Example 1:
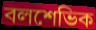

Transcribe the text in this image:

বলশেভিক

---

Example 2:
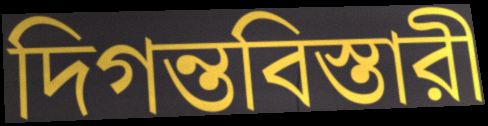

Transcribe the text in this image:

দিগন্তবিস্তারী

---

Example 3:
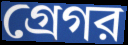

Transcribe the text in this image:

গ্রেগর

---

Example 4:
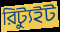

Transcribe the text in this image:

রিট্যুইট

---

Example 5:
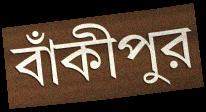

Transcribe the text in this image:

বাঁকীপুর